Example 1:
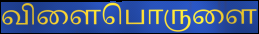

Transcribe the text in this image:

விளைபொருளை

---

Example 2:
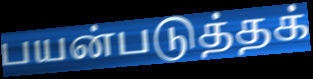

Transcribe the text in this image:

பயன்படுத்தக்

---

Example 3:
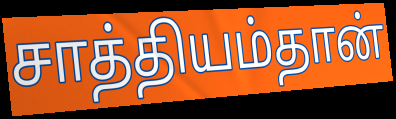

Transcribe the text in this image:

சாத்தியம்தான்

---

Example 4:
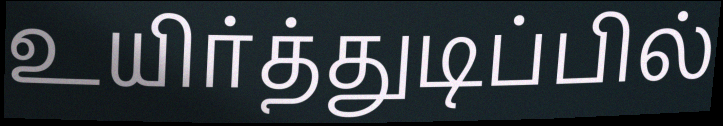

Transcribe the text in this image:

உயிர்த்துடிப்பில்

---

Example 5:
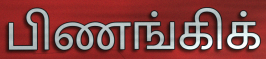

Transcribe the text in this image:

பிணங்கிக்